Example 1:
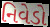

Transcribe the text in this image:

નિવેડો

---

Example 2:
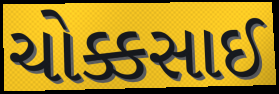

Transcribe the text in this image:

ચોક્કસાઈ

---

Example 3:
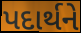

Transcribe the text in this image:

પદાર્થને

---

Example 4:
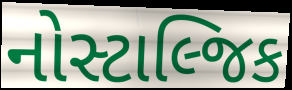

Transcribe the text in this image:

નોસ્ટાલ્જિક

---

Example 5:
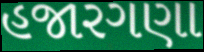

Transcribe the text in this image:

હજારગણા